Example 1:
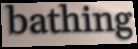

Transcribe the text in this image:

bathing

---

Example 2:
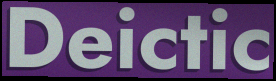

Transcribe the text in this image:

Deictic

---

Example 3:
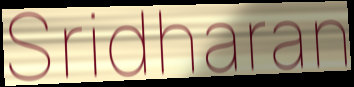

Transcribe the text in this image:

Sridharan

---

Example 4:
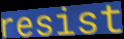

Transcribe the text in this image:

resist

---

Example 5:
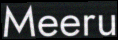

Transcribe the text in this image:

Meeru